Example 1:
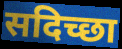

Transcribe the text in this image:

सदिच्छा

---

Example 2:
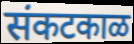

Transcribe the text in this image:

संकटकाळ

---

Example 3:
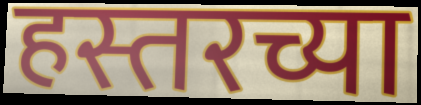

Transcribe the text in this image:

हस्तरच्या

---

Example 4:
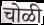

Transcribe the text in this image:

चोळी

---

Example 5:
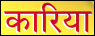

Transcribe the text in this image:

कारिया